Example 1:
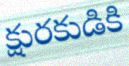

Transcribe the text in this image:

క్షురకుడికి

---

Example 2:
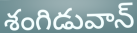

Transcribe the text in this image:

శంగిడువాన్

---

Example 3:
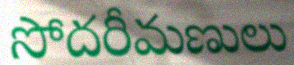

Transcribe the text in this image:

సోదరీమణులు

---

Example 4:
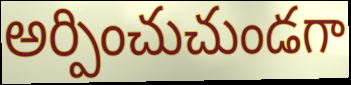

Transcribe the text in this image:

అర్పించుచుండగా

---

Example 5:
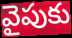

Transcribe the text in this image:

వైపుకు